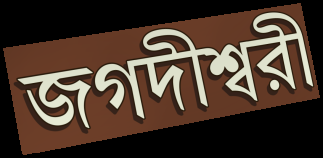
জগদীশ্বরী